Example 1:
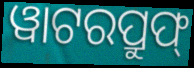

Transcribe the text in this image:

ୱାଟରପ୍ରୁଫ୍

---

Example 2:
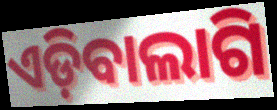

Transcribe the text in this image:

ଏଡ଼ିବାଲାଗି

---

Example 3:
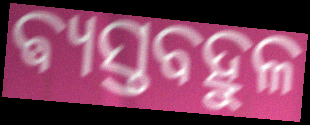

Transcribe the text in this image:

ଵ୍ୟସ୍ତବହୁଳ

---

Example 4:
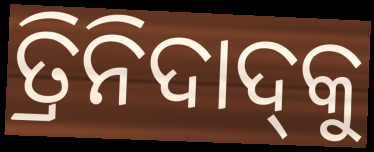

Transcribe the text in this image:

ତ୍ରିନିଦାଦ୍‍କୁ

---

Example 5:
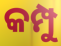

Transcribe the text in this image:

କମ୍ପୁ